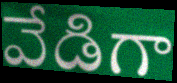
వేడిగా